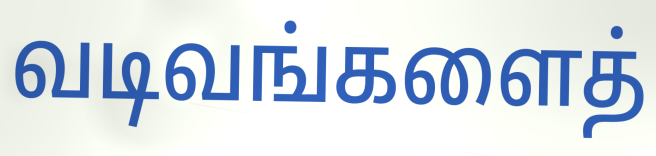
வடிவங்களைத்